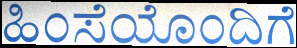
ಹಿಂಸೆಯೊಂದಿಗೆ